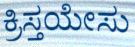
ಕ್ರಿಸ್ತಯೇಸು